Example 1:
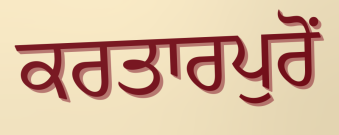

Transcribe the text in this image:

ਕਰਤਾਰਪੁਰੋਂ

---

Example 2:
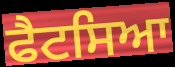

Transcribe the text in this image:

ਫੈਟਸਿਆ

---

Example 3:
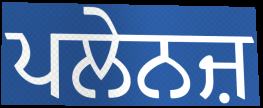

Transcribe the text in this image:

ਪਲੇਨਜ਼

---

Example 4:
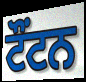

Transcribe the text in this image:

ਟੌਂਟਨ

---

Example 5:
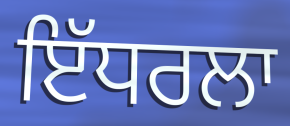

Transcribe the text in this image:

ਇੱਧਰਲਾ